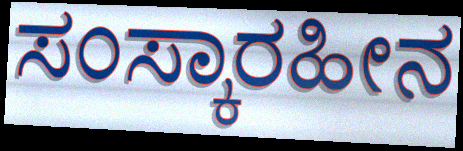
ಸಂಸ್ಕಾರಹೀನ